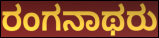
ರಂಗನಾಥರು